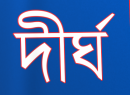
দীর্ঘ